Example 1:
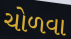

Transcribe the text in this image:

ચોળવા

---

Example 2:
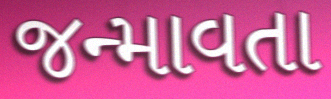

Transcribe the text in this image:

જન્માવતા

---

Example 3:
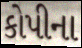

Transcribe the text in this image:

કોપીના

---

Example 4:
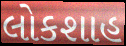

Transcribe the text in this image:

લોકશાહ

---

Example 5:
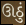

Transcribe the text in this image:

ઊઠું